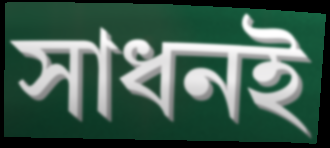
সাধনই